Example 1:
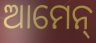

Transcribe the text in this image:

ଆମେନ୍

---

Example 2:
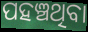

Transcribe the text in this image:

ପହଞ୍ଚଥିବା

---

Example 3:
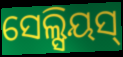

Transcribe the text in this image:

ସେଲ୍ସିୟସ୍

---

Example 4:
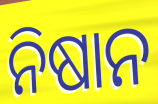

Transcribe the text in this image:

ନିଷାନ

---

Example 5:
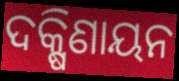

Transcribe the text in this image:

ଦକ୍ଷିଣାୟନ